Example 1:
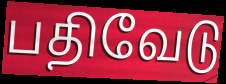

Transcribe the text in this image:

பதிவேடு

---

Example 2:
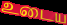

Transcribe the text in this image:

உடைய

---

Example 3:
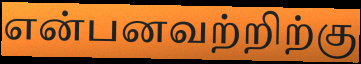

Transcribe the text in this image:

என்பனவற்றிற்கு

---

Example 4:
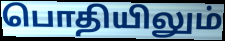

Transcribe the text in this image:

பொதியிலும்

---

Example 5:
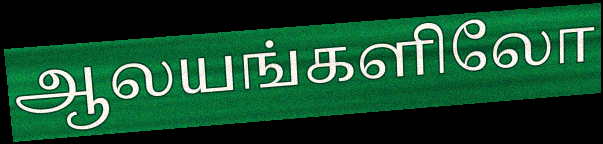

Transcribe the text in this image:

ஆலயங்களிலோ